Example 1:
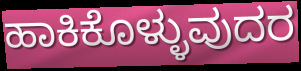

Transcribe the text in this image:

ಹಾಕಿಕೊಳ್ಳುವುದರ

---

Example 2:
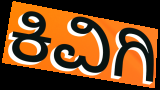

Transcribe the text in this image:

ಕಿವಿಗಿ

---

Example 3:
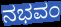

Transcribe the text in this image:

ನಭವಂ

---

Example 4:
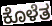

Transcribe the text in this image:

ಕೊಳೆತ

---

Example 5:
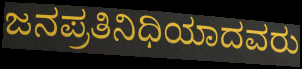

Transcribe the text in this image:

ಜನಪ್ರತಿನಿಧಿಯಾದವರು